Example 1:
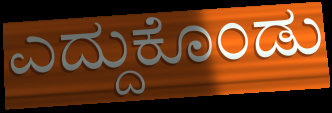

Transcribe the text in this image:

ಎದ್ದುಕೊಂಡು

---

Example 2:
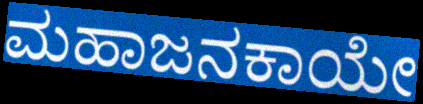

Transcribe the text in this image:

ಮಹಾಜನಕಾಯೇ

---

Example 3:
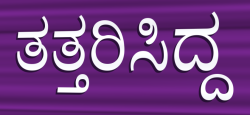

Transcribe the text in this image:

ತತ್ತರಿಸಿದ್ದ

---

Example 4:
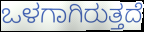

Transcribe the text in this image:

ಒಳಗಾಗಿರುತ್ತದೆ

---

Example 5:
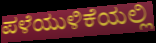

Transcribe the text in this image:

ಪಳೆಯುಳಿಕೆಯಲ್ಲಿ